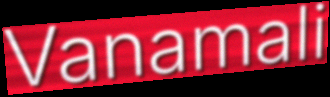
Vanamali